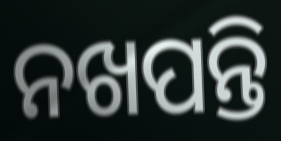
ନଖପନ୍ତି